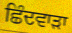
ਛਿੰਦਵਾੜਾ